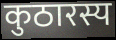
कुठारस्य